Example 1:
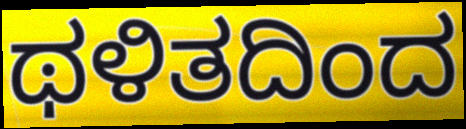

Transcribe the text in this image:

ಥಳಿತದಿಂದ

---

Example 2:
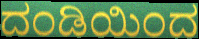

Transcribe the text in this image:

ದಂಡಿಯಿಂದ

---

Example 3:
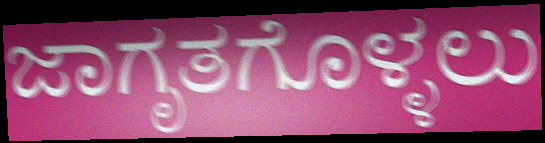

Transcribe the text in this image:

ಜಾಗೃತಗೊಳ್ಳಲು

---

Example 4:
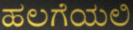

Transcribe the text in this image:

ಹಲಗೆಯಲಿ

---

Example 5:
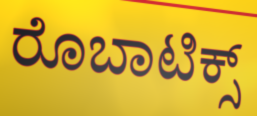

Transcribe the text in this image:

ರೊಬಾಟಿಕ್ಸ್